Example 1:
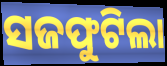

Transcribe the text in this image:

ସଜଫୁଟିଲା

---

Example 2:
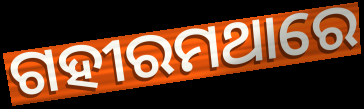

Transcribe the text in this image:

ଗହୀରମଥାରେ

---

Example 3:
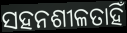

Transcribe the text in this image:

ସହନଶୀଳତାହିଁ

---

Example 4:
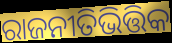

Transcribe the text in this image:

ରାଜନୀତିଭିତ୍ତିକ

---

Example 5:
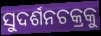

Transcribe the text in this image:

ସୁଦର୍ଶନଚକ୍ରକୁ